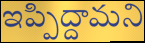
ఇప్పిద్దామని